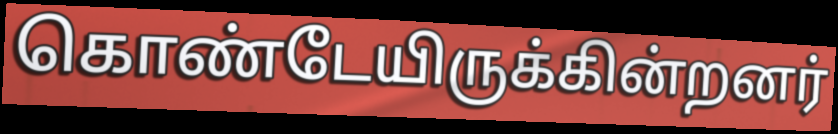
கொண்டேயிருக்கின்றனர்